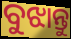
ବୁଝାନ୍ତୁ